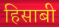
हिसाबी